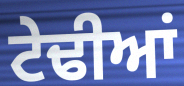
ਟੇਢੀਆਂ